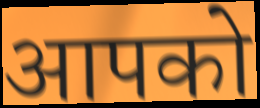
आपको